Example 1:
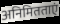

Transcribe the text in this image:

अनिमितताएं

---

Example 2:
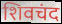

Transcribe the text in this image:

शिवचंद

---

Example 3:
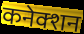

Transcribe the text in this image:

कनेक्‍शन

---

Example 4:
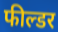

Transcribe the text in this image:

फील्डर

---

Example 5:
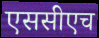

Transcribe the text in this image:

एससीएच